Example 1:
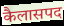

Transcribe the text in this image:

कैलासपद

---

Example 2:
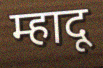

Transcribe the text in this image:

म्हादू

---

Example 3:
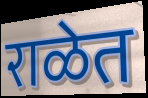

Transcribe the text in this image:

राळेत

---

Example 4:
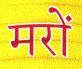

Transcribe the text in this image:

मरों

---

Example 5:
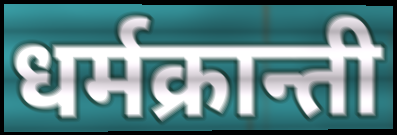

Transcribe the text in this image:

धर्मक्रान्ती